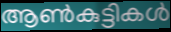
ആൺകുട്ടികൾ